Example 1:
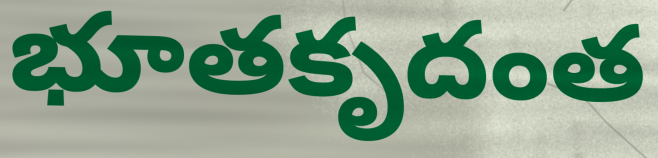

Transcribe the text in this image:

భూతకృదంత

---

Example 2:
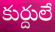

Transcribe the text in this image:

కుర్దులే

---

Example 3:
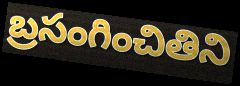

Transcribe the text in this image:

బ్రసంగించితిని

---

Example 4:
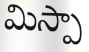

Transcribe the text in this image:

మిస్పా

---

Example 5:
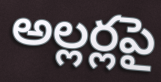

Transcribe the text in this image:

అల్లర్లపై